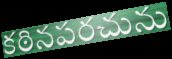
కఠినపరచును